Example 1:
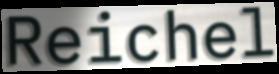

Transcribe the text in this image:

Reichel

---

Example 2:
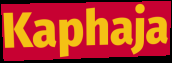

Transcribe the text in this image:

Kaphaja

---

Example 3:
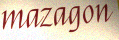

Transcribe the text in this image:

mazagon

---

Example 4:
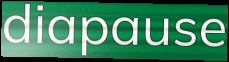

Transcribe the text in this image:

diapause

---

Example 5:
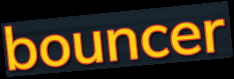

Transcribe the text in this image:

bouncer